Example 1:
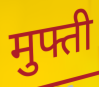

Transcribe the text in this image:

मुफ्ती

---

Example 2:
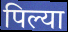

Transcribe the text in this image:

पिल्या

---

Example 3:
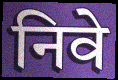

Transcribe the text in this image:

निवे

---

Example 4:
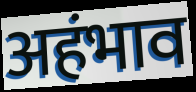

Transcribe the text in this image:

अहंभाव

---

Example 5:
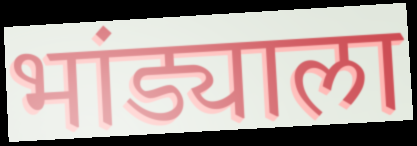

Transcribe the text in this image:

भांड्याला